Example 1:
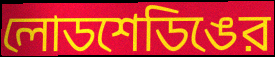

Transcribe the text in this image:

লোডশেডিঙের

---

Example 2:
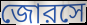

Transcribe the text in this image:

জোরসে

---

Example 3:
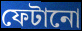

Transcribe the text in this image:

ফেটানো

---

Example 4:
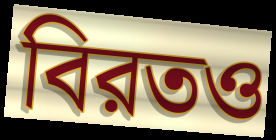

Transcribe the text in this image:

বিরতও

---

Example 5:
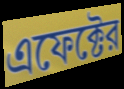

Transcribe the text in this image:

এফেক্টের